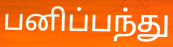
பனிப்பந்து